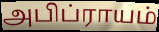
அபிப்ராயம்